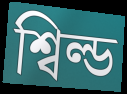
শ্বিল্ড